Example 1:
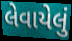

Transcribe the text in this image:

લેવાયેલું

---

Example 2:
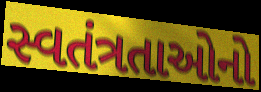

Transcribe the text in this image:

સ્વતંત્રતાઓનો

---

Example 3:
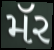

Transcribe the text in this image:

મૅર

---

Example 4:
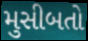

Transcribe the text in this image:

મુસીબતો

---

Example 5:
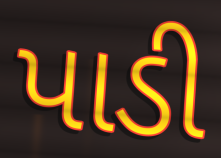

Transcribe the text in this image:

પાડી